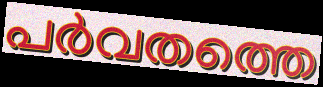
പർവതത്തെ